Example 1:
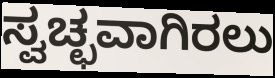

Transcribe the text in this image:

ಸ್ವಚ್ಛವಾಗಿರಲು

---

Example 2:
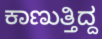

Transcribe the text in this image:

ಕಾಣುತ್ತಿದ್ದ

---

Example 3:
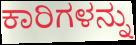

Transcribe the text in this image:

ಕಾರಿಗಳನ್ನು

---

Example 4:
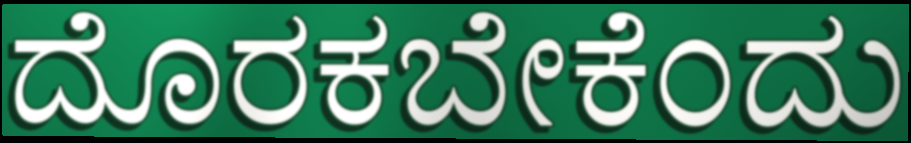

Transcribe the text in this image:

ದೊರಕಬೇಕೆಂದು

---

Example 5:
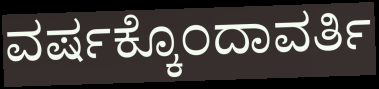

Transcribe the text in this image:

ವರ್ಷಕ್ಕೊಂದಾವರ್ತಿ